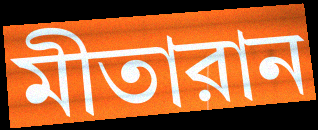
মীতারান